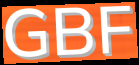
GBF